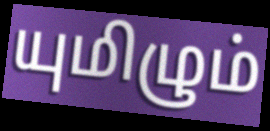
யுமிழும்